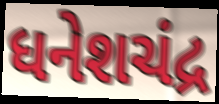
ધનેશચંદ્ર